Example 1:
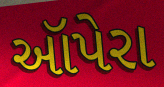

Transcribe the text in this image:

ઑપેરા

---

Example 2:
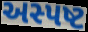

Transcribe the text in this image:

અસ્પષ્ટ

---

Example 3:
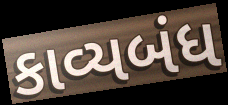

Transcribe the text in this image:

કાવ્યબંધ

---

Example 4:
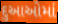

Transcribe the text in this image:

દુઆઓમાં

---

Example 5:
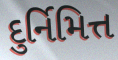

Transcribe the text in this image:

દુર્નિમિત્ત